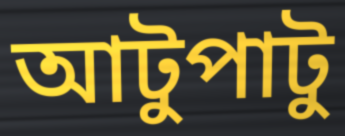
আটুপাটু